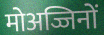
मोअज्जिनों